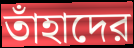
তাঁহাদের